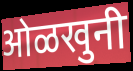
ओळखुनी